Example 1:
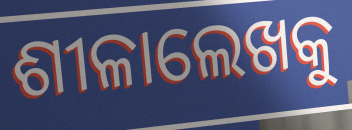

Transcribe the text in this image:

ଶୀଳାଲେଖକୁ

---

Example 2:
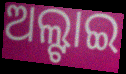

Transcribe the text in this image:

ଅଲ୍ଟାଇ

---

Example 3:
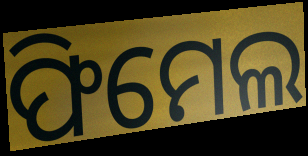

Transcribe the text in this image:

ଫିମେଲ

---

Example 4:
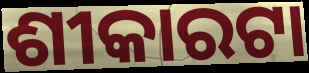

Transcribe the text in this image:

ଶୀକାରଟା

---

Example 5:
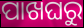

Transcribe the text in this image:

ପାଖଘରୁ